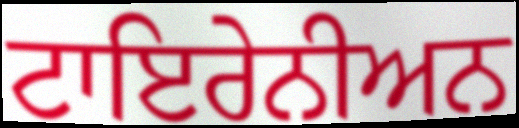
ਟਾਇਰੇਨੀਅਨ